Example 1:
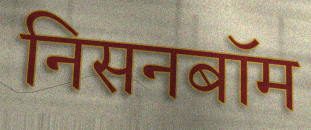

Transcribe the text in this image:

निसनबॉम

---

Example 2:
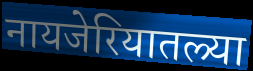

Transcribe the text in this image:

नायजेरियातल्या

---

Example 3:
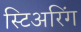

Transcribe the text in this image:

स्टिअरिंग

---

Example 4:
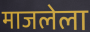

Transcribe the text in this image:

माजलेला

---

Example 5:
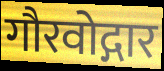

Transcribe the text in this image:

गौरवोद्गार